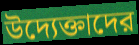
উদ্যেক্তাদের